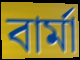
বার্মা